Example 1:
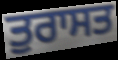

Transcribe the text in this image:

ਤੁਰਾਸਤ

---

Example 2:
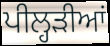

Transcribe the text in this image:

ਪੀਲ੍ਹੜੀਆਂ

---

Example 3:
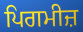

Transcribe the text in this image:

ਪਿਗਮੀਜ਼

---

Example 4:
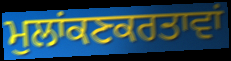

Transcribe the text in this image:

ਮੁਲਾਂਕਣਕਰਤਾਵਾਂ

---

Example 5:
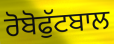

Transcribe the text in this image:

ਰੋਬੋਫੁੱਟਬਾਲ